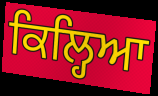
ਕਿਲ੍ਹਿਆ